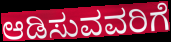
ಆಡಿಸುವವರಿಗೆ